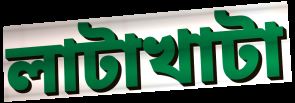
লাটাখাটা